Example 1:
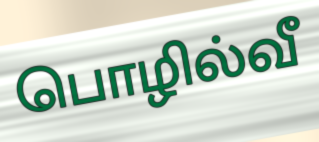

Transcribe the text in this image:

பொழில்வீ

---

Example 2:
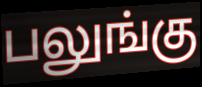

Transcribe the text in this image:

பலுங்கு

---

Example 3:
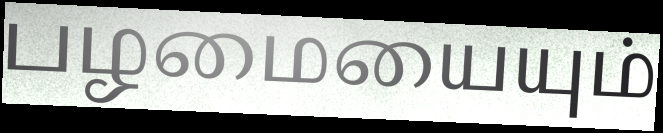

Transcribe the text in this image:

பழமையையும்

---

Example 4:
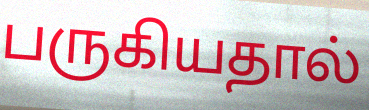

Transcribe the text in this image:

பருகியதால்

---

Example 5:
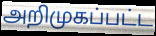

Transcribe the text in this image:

அறிமுகப்பட்ட